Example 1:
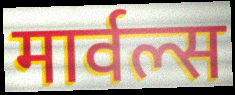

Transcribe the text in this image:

मार्वल्स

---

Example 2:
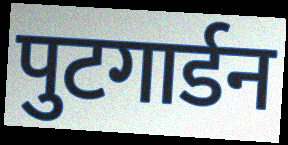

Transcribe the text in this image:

पुटगार्डन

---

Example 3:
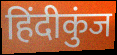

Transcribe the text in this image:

हिंदीकुंज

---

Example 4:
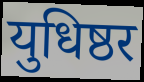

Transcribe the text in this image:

युधिष्ठर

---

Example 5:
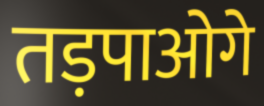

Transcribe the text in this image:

तड़पाओगे